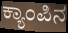
ಕ್ಯಾಂಪಿನ